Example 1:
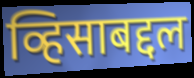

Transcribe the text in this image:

व्हिसाबद्दल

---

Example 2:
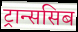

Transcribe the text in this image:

ट्रान्ससिब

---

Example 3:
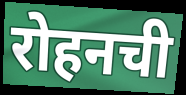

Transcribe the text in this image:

रोहनची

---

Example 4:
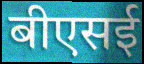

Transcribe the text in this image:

बीएसई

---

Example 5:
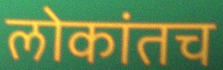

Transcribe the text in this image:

लोकांतच